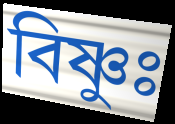
বিষ্ণুঃ